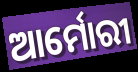
ଆର୍ମୋରୀ